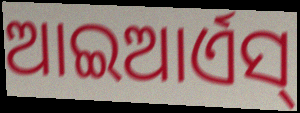
ଆଇଆର୍ଏସ୍